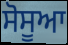
ਸੋਸੂਆ